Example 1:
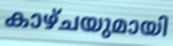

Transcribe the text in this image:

കാഴ്ചയുമായി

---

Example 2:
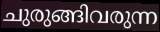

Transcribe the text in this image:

ചുരുങ്ങിവരുന്ന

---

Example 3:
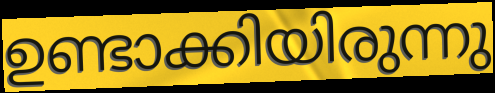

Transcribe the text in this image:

ഉണ്ടാക്കിയിരുന്നു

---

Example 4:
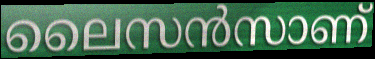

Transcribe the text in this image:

ലൈസൻസാണ്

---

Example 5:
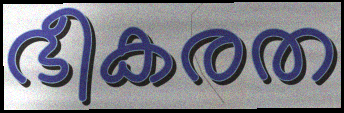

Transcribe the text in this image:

ഭീകരത